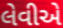
લેવીએ